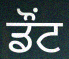
ਡੌਂਟ